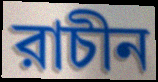
রাচীন